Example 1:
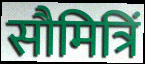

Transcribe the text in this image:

सौमित्रिं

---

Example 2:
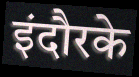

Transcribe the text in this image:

इंदौरके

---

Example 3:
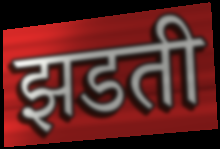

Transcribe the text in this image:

झडती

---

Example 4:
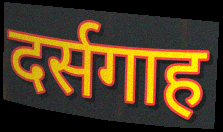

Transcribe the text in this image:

दर्सगाह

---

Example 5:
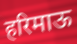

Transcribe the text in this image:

हरिमाऊ